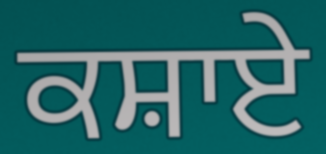
ਕਸ਼ਾਏ